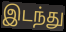
இடந்து